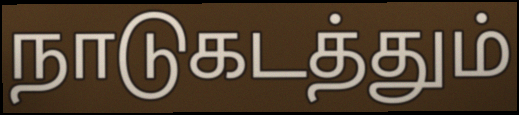
நாடுகடத்தும்